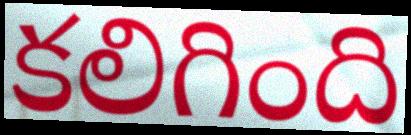
కలిగింది